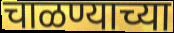
चाळण्याच्या